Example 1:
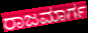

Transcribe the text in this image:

ರಾಜಮಾರ್ಗ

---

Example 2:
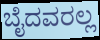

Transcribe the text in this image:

ಬೈದವರಲ್ಲ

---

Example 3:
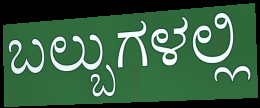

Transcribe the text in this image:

ಬಲ್ಬುಗಳಲ್ಲಿ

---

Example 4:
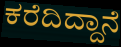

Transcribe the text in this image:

ಕರೆದಿದ್ದಾನೆ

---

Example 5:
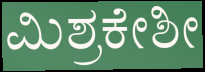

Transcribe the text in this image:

ಮಿಶ್ರಕೇಶೀ